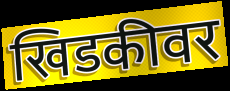
खिडकीवर